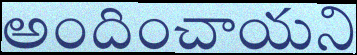
అందించాయని